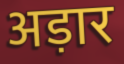
अड़ार